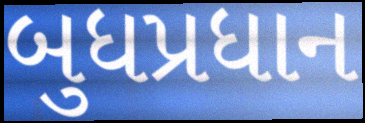
બુધપ્રધાન